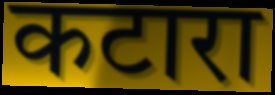
कटारा